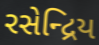
રસેન્દ્રિય